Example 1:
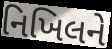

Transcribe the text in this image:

નિખિલને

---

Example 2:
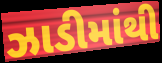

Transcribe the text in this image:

ઝાડીમાંથી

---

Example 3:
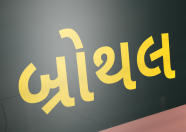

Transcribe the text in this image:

બ્રોથલ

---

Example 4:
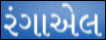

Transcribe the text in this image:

રંગાએલ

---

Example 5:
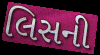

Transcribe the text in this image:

લિસની